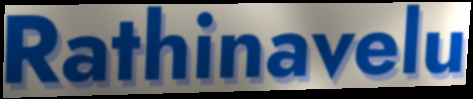
Rathinavelu